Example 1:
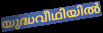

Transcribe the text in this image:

യുദ്ധവീഥിയിൽ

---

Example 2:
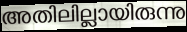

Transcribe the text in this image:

അതിലില്ലായിരുന്നു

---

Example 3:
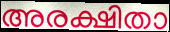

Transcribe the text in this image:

അരക്ഷിതാ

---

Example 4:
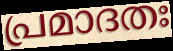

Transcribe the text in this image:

പ്രമാദതഃ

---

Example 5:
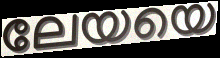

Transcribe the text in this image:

ലേയയെ